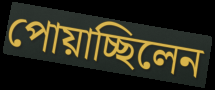
পোয়াচ্ছিলেন